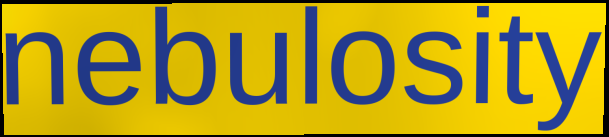
nebulosity